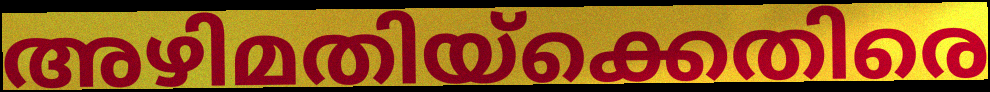
അഴിമതിയ്ക്കെതിരെ